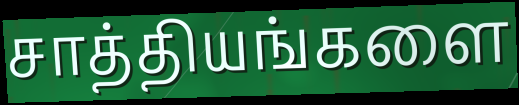
சாத்தியங்களை